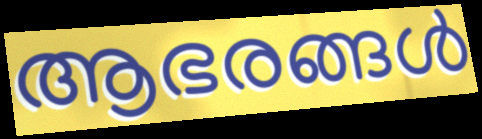
ആഭരങ്ങൾ